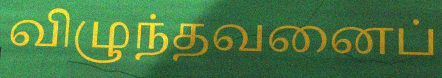
விழுந்தவனைப்